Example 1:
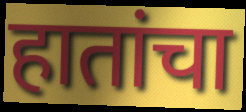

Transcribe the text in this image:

हातांचा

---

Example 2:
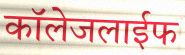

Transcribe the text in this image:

कॉलेजलाईफ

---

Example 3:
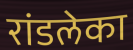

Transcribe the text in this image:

रांडलेका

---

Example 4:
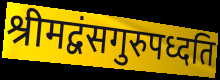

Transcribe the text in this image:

श्रीमद्वंसगुरुपध्दति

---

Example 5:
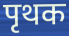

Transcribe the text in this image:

पृथक